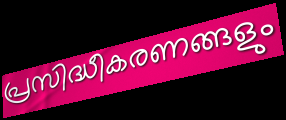
പ്രസിദ്ധീകരണങ്ങളും